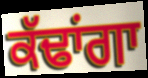
ਕੱਢਾਂਗਾ